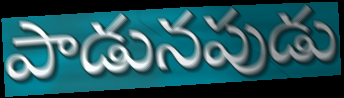
పాడునపుడు